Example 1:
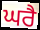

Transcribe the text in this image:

ਘਰੈ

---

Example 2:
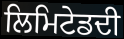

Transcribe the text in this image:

ਲਿਮਿਟੇਡਦੀ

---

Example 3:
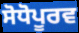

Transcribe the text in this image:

ਸੋਧੋਪੂਰਵ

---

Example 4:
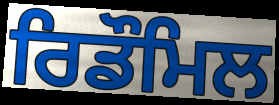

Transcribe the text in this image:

ਰਿਡੌਮਿਲ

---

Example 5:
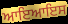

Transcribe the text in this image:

ਆਇਆਇਸ